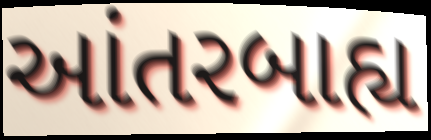
આંતરબાહ્ય